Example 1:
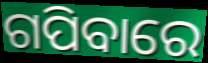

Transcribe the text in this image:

ଗପିବାରେ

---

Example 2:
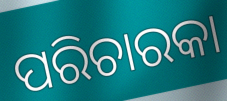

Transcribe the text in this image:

ପରିଚାରକା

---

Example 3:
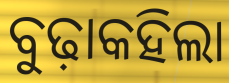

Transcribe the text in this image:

ବୁଢ଼ାକହିଲା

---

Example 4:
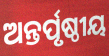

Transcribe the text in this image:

ଅନ୍ତର୍ପୃଷ୍ଠୀୟ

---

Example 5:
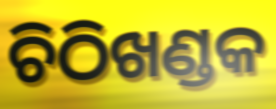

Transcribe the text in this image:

ଚିଠିଖଣ୍ଡକ